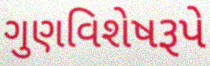
ગુણવિશેષરૂપે